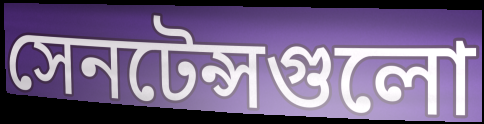
সেনটেন্সগুলো